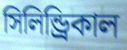
সিলিন্ড্রিকাল